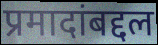
प्रमादांबद्दल